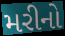
મરીનો